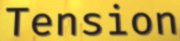
Tension